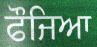
ਫੌਜਿਆ